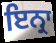
ਇਨ੍ਰਾ